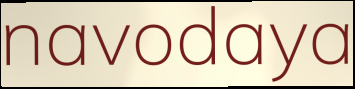
navodaya